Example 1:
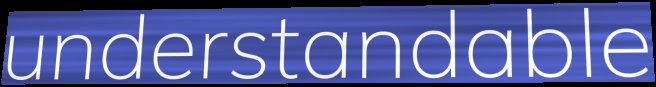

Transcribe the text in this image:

understandable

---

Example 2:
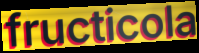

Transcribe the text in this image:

fructicola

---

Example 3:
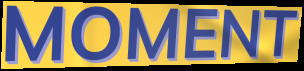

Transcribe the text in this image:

MOMENT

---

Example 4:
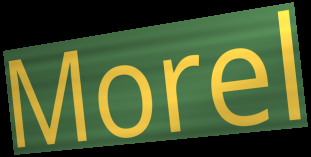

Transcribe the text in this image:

Morel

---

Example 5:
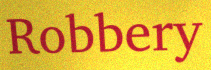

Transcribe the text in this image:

Robbery